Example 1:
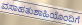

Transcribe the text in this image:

ವಸಾಹತುಶಾಹಿಯೊಂದಿಗೆ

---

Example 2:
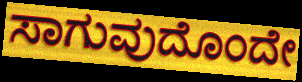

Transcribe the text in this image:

ಸಾಗುವುದೊಂದೇ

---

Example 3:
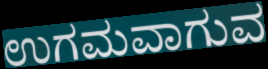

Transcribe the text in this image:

ಉಗಮವಾಗುವ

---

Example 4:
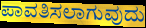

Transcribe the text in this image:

ಪಾವತಿಸಲಾಗುವುದು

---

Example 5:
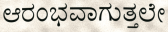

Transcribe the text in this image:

ಆರಂಭವಾಗುತ್ತಲೇ